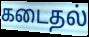
கடைதல்